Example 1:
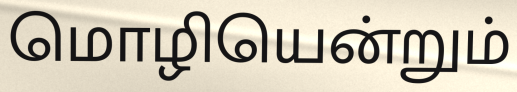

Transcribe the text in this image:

மொழியென்றும்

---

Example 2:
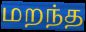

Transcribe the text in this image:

மறந்த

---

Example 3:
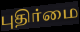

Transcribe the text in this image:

புதிர்மை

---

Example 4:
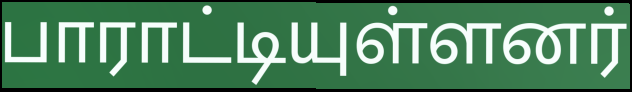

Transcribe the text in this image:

பாராட்டியுள்ளனர்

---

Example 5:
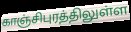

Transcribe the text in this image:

காஞ்சிபுரத்திலுள்ள